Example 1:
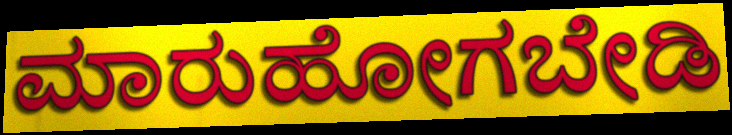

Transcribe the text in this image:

ಮಾರುಹೋಗಬೇಡಿ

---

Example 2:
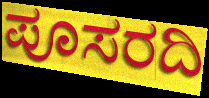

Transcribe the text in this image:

ಪೂಸರದಿ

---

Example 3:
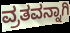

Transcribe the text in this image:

ವ್ರತವನ್ನಾಗಿ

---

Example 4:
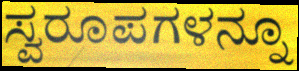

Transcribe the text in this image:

ಸ್ವರೂಪಗಳನ್ನೂ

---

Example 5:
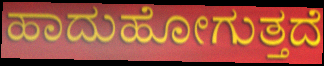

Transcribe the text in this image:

ಹಾದುಹೋಗುತ್ತದೆ